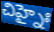
చిహ్నైః